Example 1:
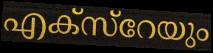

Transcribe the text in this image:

എക്സ്റേയും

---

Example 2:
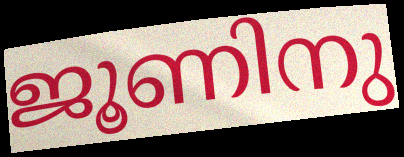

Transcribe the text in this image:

ജൂണിനു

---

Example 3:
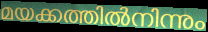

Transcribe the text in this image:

മയക്കത്തിൽനിന്നും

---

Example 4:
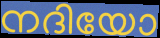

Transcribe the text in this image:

നദിയോ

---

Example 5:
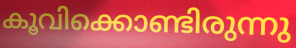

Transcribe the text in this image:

കൂവിക്കൊണ്ടിരുന്നു